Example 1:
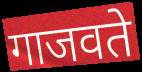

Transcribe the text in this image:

गाजवते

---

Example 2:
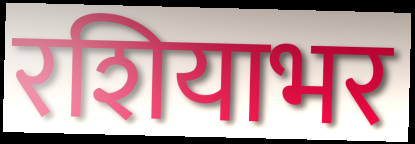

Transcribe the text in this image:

रशियाभर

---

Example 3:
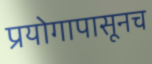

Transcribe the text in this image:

प्रयोगापासूनच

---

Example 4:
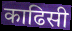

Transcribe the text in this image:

काढिसी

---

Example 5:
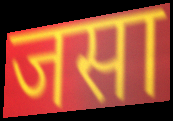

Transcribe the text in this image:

जसा